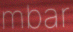
mbar